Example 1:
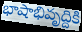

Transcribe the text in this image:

భాషాభివృద్దికి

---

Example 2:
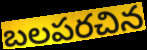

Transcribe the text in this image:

బలపరచిన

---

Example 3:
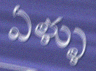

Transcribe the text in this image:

ఏళ్ళు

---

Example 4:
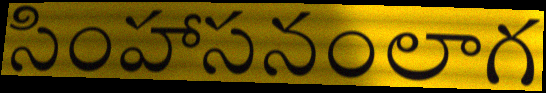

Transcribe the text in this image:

సింహాసనంలాగ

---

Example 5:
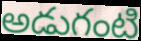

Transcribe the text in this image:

అడుగంటి